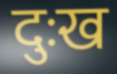
दुःख